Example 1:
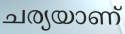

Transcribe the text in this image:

ചര്യയാണ്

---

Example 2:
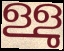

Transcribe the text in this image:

ള്ളു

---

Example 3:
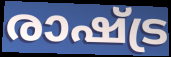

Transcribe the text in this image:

രാഷ്ട്ര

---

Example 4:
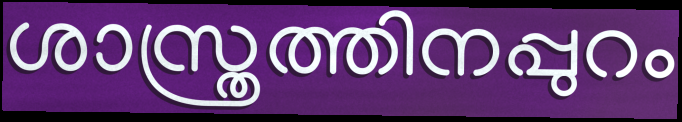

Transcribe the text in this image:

ശാസ്ത്രത്തിനപ്പുറം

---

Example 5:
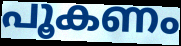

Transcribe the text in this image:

പൂകണം